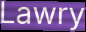
Lawry